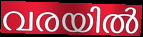
വരയിൽ